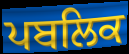
ਪਬਲਿਕ